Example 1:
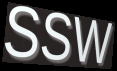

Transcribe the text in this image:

SSW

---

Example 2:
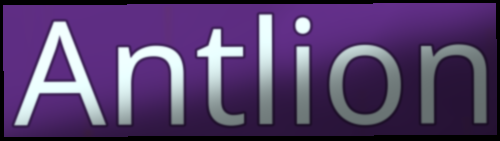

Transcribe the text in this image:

Antlion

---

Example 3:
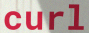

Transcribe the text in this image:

curl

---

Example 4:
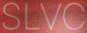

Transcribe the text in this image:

SLVC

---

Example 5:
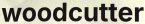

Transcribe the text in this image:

woodcutter